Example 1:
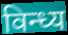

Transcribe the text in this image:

विन्ध्य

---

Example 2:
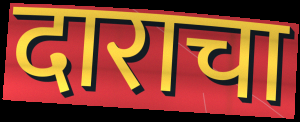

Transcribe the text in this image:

दाराचा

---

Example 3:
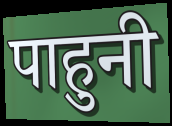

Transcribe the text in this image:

पाहुनी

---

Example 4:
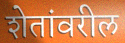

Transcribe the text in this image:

शेतांवरील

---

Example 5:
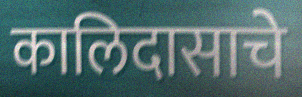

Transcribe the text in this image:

कालिदासाचे